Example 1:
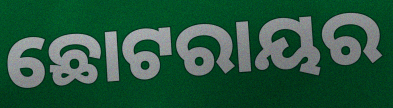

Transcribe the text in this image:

ଛୋଟରାୟର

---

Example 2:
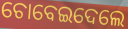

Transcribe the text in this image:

ଚୋବେଇଦେଲେ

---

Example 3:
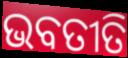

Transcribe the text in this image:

ଭବତୀତି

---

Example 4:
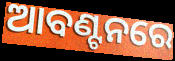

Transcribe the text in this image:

ଆବଣ୍ଟନରେ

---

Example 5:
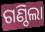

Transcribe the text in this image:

ଗଣ୍ଠିଲା